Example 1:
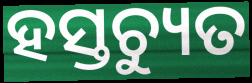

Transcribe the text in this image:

ହସ୍ତଚ୍ୟୁତ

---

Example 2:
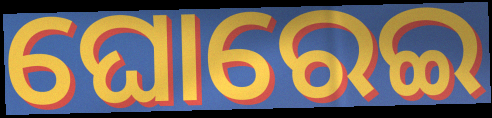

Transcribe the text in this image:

ଘୋରେଇ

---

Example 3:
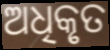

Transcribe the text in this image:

ଅଧିକୃତ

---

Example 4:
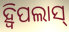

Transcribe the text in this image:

ହ୍ୱିପଲାସ୍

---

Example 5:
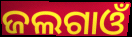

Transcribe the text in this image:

ଜଲଗାଓଁ